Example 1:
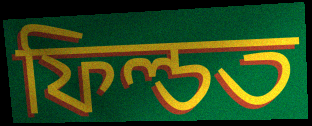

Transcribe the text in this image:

ফিল্ডত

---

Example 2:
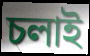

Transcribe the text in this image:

চলাই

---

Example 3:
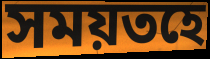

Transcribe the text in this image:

সময়তহে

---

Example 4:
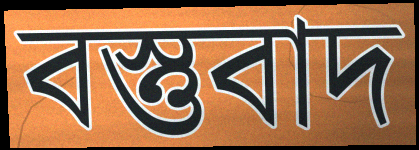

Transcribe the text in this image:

বস্তুবাদ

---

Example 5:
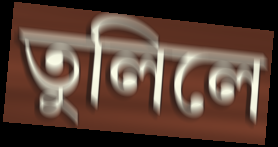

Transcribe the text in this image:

তুলিলে